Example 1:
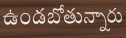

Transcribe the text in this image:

ఉండబోతున్నారు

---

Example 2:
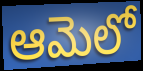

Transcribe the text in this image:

ఆమెలో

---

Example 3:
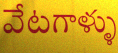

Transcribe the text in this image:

వేటగాళ్ళు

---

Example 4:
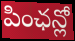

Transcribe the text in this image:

పింఛన్లో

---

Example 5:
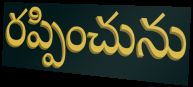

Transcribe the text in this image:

రప్పించును